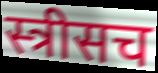
स्त्रीसच